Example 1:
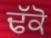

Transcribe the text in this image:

ਢੱਕੋ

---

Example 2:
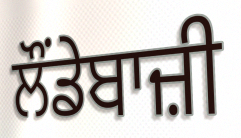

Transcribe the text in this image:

ਲੌਂਡੇਬਾਜ਼ੀ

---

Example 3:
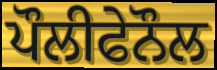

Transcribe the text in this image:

ਪੌਲੀਫੇਨੌਲ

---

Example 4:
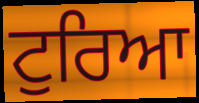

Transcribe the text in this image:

ਟੁਰਿਆ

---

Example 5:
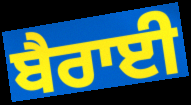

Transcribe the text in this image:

ਬੈਰਾਈ